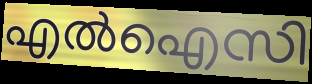
എൽഐസി